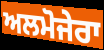
ਅਲਮੋਜੇਰਾ